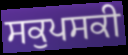
ਸਕੁਪਸਕੀ